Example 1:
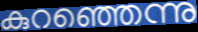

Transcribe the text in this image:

കുറഞ്ഞെന്നു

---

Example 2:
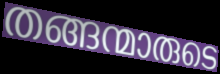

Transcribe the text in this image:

തങ്ങന്മാരുടെ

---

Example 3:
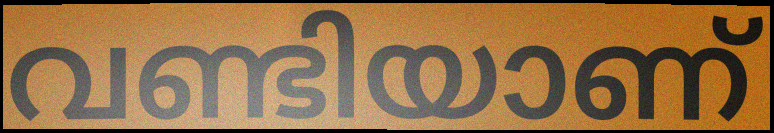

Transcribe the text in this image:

വണ്ടിയാണ്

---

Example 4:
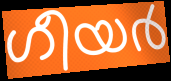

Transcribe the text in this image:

ഗീയർ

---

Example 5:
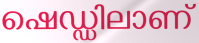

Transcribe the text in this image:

ഷെഡ്ഡിലാണ്